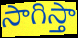
సాగిస్తా